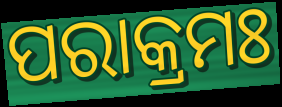
ପରାକ୍ରମଃ